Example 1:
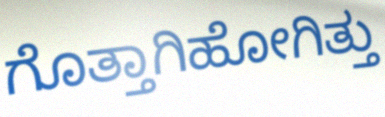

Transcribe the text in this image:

ಗೊತ್ತಾಗಿಹೋಗಿತ್ತು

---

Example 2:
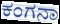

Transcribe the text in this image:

ಕಂಗನಾ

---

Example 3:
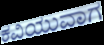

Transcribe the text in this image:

ಕವಿಯುವಾಗ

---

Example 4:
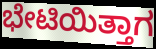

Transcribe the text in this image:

ಭೇಟಿಯಿತ್ತಾಗ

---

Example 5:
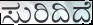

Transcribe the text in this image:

ಸುರಿದಿದೆ